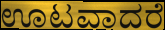
ಊಟವಾದರೆ